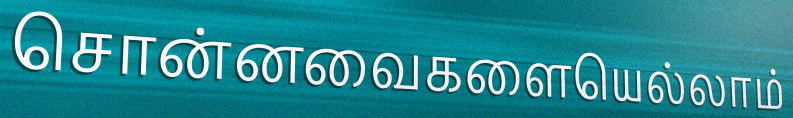
சொன்னவைகளையெல்லாம்